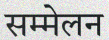
सम्‍मेलन